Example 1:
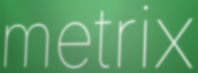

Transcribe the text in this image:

metrix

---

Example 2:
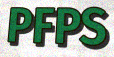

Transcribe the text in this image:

PFPS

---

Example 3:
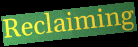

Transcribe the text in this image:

Reclaiming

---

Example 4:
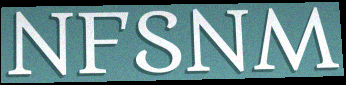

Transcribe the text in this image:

NFSNM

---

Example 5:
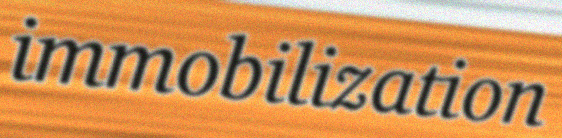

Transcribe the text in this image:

immobilization